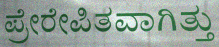
ಪ್ರೇರೇಪಿತವಾಗಿತ್ತು